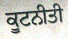
ਕੂਟਨੀਤੀ